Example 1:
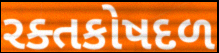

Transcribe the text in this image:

રક્તકોષદળ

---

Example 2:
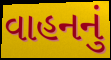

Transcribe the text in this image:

વાહનનું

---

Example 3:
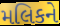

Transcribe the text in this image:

મલિકને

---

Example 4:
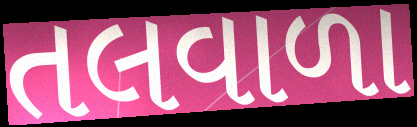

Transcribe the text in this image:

તલવાળા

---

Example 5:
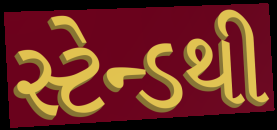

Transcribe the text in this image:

સ્ટેન્ડથી